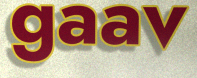
gaav